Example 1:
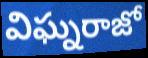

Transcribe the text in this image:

విఘ్నరాజో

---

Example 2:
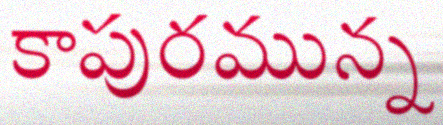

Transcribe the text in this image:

కాపురమున్న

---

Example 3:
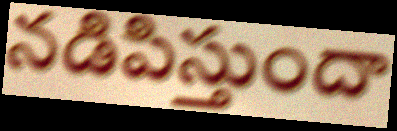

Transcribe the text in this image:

నడిపిస్తుందా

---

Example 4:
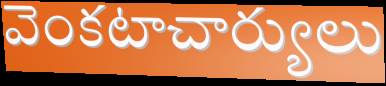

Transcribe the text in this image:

వెంకటాచార్యులు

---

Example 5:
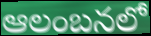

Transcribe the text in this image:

ఆలంబనలో